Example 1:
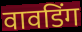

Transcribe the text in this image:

वावडिंग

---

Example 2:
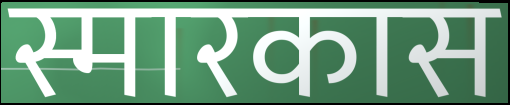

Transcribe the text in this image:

स्मारकास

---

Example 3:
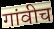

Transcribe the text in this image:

गांवीच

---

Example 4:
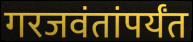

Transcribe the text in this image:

गरजवंतांपर्यंत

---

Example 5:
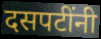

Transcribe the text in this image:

दसपटींनी